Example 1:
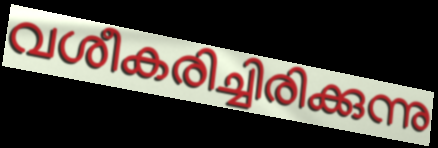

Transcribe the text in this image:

വശീകരിച്ചിരിക്കുന്നു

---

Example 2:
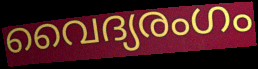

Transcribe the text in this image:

വൈദ്യരംഗം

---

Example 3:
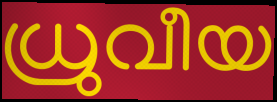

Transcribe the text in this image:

ധ്രുവീയ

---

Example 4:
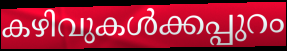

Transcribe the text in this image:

കഴിവുകൾക്കപ്പുറം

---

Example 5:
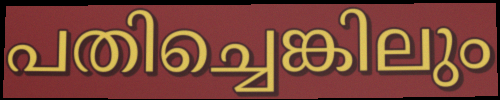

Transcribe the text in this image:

പതിച്ചെങ്കിലും